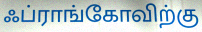
ஃப்ராங்கோவிற்கு